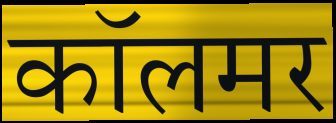
कॉलमर